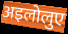
अइलोलुए